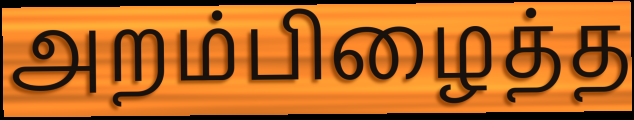
அறம்பிழைத்த